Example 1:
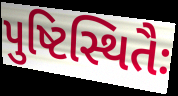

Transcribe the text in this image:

પુષ્ટિસ્થિતૈઃ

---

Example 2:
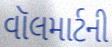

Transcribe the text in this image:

વૉલમાર્ટની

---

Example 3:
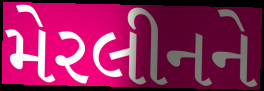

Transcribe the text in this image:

મેરલીનને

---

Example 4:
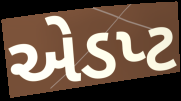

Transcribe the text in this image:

એડપ્ટ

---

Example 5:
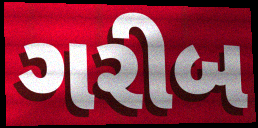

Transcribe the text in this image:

ગરીબ